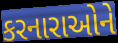
કરનારાઓને